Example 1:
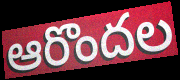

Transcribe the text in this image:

ఆరొందల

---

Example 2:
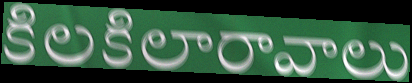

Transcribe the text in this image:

కిలకిలారావాలు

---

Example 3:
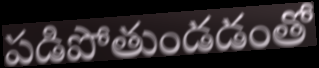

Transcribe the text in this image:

పడిపోతుండడంతో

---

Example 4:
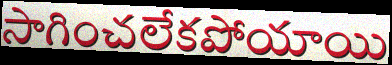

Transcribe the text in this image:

సాగించలేకపోయాయి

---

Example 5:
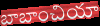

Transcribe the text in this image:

బాబాంచియా